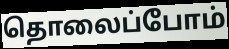
தொலைப்போம்